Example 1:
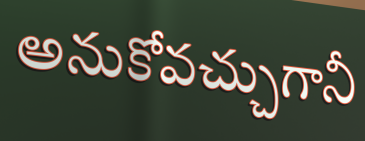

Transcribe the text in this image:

అనుకోవచ్చుగానీ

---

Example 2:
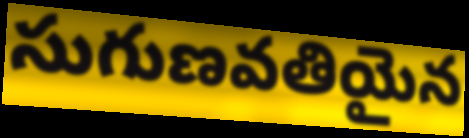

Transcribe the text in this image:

సుగుణవతియైన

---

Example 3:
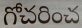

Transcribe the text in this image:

గోచరించ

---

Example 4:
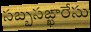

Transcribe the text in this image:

సబ్బసఙ్ఖారేసు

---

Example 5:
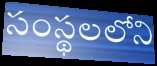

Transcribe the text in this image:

సంస్థలలోని